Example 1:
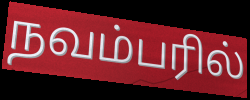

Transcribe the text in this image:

நவம்பரில்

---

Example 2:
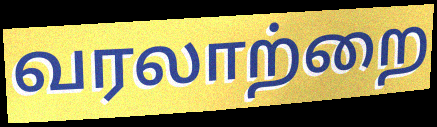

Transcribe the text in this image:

வரலாற்றை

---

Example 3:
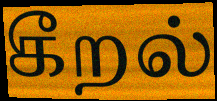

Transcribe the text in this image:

கீறல்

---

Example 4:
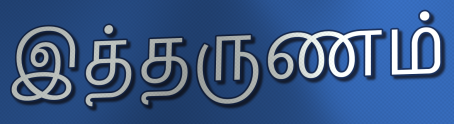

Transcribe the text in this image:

இத்தருணம்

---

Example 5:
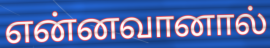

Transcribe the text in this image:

என்னவானால்